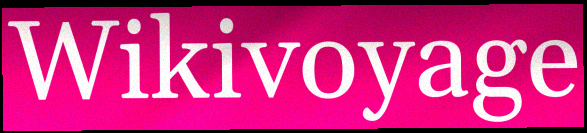
Wikivoyage